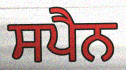
ਸਪੈਨ